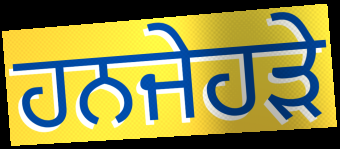
ਹਨਜੇਹੜੇ